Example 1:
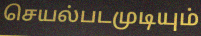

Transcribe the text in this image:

செயல்படமுடியும்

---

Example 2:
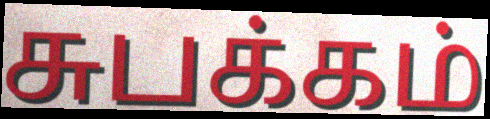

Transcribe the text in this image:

சுபக்கம்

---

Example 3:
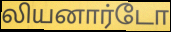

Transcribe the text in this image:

லியனார்டோ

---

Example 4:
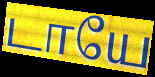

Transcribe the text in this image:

டாயே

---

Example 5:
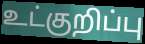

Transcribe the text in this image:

உட்குறிப்பு